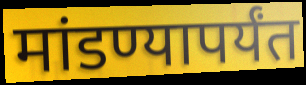
मांडण्यापर्यंत